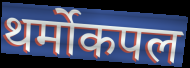
थर्मोकपल